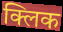
क्लिक